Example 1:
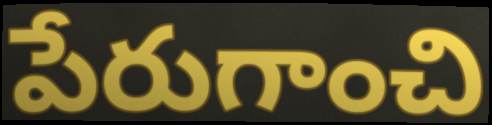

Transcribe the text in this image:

పేరుగాంచి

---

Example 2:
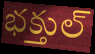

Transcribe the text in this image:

భక్తుల్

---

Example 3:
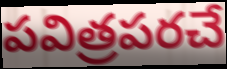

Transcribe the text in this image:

పవిత్రపరచే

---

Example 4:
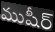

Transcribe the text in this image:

ముషీర్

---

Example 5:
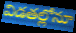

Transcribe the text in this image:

విడతల్లోనూ